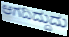
ಆಗದಿದ್ದುದು